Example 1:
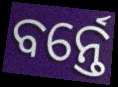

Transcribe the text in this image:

ବର୍ନ୍ତେ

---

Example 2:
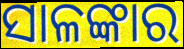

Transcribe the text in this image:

ସାଳଙ୍କାର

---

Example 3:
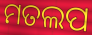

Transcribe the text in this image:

ମତଲପ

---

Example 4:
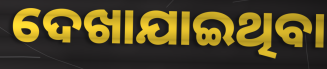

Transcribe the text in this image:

ଦେଖାଯାଇଥିବା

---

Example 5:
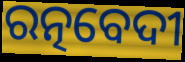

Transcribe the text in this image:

ରତ୍ନବେଦୀ